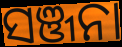
ସଞ୍ଜନା